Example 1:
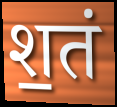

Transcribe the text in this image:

श॒तं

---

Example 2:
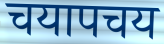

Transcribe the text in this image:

चयापचय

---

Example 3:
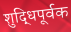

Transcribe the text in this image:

शुद्धिपूर्वक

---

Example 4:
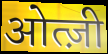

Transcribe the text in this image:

ओत्ज़ी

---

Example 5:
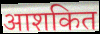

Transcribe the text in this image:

आशकित